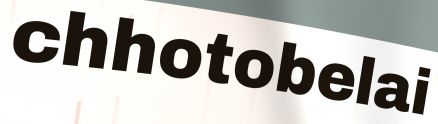
chhotobelai